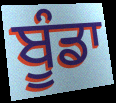
ਬੂੰਡਾ